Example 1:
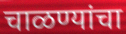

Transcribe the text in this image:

चाळण्यांचा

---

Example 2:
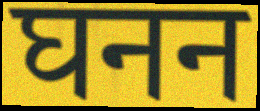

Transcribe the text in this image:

घनन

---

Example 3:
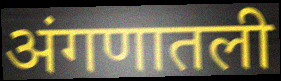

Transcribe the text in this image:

अंगणातली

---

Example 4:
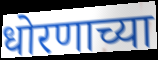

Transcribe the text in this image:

धोरणाच्या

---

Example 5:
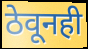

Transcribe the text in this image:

ठेवूनही